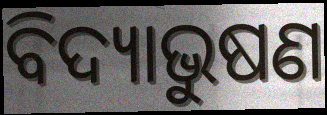
ବିଦ୍ୟାଭୁଷଣ